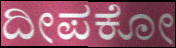
ದೀಪಕೋ